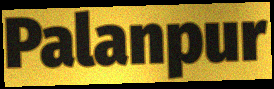
Palanpur